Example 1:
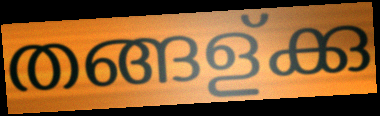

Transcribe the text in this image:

തങ്ങള്ക്കു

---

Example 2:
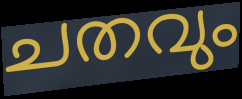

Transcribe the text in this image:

ചതവും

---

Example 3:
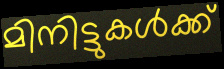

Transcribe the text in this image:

മിനിട്ടുകൾക്ക്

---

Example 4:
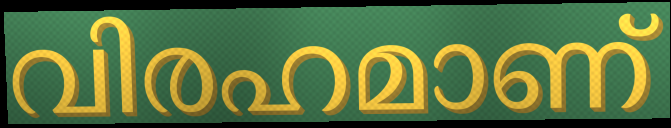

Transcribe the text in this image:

വിരഹമാണ്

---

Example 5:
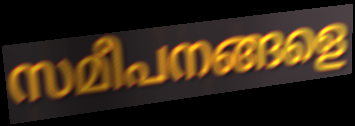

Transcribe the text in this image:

സമീപനങ്ങളെ